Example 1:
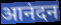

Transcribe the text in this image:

आनंदन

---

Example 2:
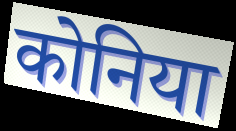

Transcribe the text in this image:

कोनिया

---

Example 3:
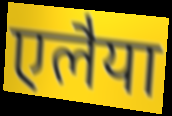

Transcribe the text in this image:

एलैया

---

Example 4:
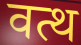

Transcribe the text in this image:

वत्थ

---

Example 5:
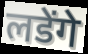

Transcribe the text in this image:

लडेंगे